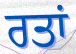
ਰਤਾਂ